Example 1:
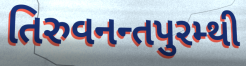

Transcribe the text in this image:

તિરુવનન્તપુરમ્થી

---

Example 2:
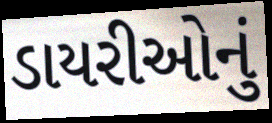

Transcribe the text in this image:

ડાયરીઓનું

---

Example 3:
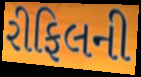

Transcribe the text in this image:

રીફિલની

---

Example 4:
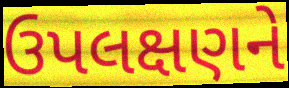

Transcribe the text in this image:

ઉપલક્ષણને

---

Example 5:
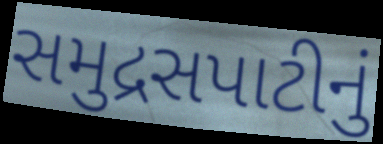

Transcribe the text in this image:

સમુદ્રસપાટીનું